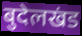
बुदेलखंड